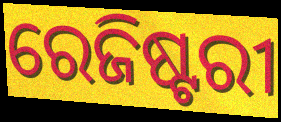
ରେଜିଷ୍ଟରୀ